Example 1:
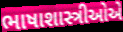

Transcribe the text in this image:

ભાષાશાસ્ત્રીઓએ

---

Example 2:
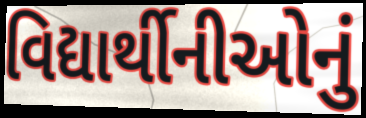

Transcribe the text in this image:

વિદ્યાર્થીનીઓનું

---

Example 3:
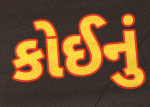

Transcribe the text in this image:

કોઈનું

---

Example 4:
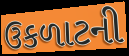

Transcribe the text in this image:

ઉકળાટની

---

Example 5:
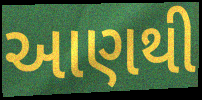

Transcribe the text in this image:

આણથી